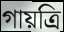
গায়ত্রি